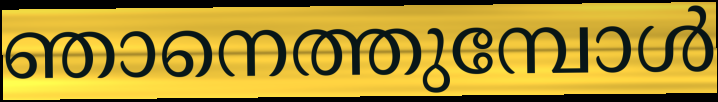
ഞാനെത്തുമ്പോൾ